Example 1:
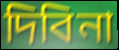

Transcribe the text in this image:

দিবিনা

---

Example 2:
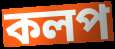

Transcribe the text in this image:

কলপ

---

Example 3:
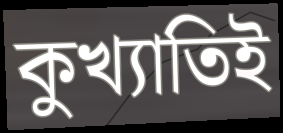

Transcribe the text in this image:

কুখ্যাতিই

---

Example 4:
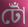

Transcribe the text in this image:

টোঁ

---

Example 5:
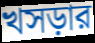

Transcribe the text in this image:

খসড়ার